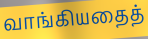
வாங்கியதைத்